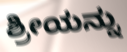
ಶ್ರೀಯನ್ನು